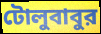
টোলুবাবুর